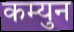
कम्युन